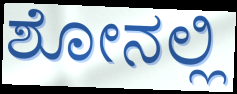
ಶೋನಲ್ಲಿ